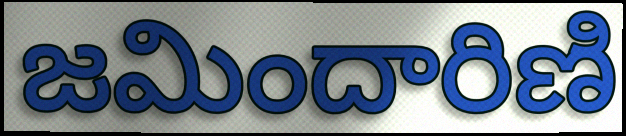
జమిందారిణి